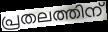
പ്രതലത്തിന്